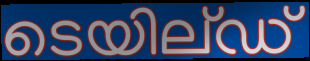
ടെയില്ഡ്